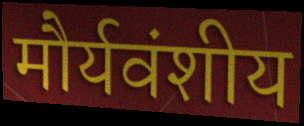
मौर्यवंशीय